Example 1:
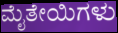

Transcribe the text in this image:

ಮೈತೇಯಿಗಳು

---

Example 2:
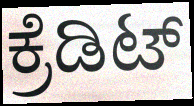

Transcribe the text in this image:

ಕ್ರೆಡಿಟ್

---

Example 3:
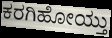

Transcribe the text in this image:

ಕರಗಿಹೋಯ್ತು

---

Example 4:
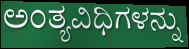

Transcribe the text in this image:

ಅಂತ್ಯವಿಧಿಗಳನ್ನು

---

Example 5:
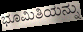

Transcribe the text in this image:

ಭೂಮಿತಿಯನ್ನು